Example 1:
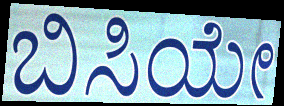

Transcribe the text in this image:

ಬಿಸಿಯೇ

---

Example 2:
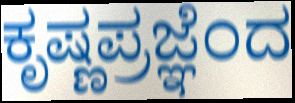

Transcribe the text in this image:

ಕೃಷ್ಣಪ್ರಜ್ಞೆಂದ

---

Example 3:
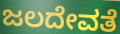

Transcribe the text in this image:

ಜಲದೇವತೆ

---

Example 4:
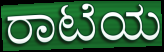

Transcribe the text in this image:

ರಾಟೆಯ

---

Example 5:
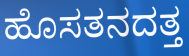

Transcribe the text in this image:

ಹೊಸತನದತ್ತ